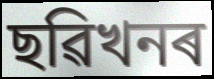
ছৱিখনৰ